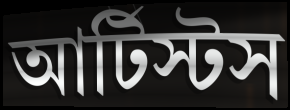
আর্টিস্টস